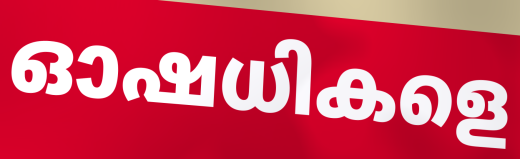
ഓഷധികളെ